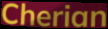
Cherian